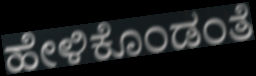
ಹೇಳಿಕೊಂಡಂತೆ